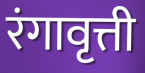
रंगावृत्ती